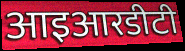
आइआरडीटी